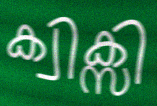
ക്വിക്സി